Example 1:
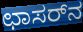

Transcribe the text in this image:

ಛಾಸರ್‌ನ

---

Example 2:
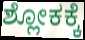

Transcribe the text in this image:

ಶ್ಲೋಕಕ್ಕೆ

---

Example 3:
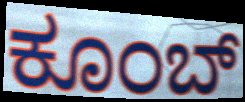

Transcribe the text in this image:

ಕೂಂಬ್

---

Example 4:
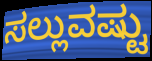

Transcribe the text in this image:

ಸಲ್ಲುವಷ್ಟು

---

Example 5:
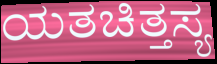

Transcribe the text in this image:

ಯತಚಿತ್ತಸ್ಯ